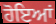
ਹੋਇਆਂ